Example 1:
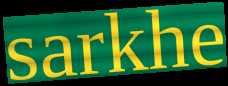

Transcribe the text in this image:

sarkhe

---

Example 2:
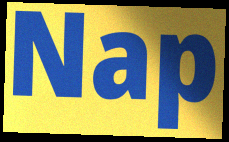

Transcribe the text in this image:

Nap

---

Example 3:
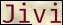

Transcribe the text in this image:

Jivi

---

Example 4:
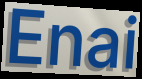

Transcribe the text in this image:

Enai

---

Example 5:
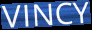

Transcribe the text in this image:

VINCY